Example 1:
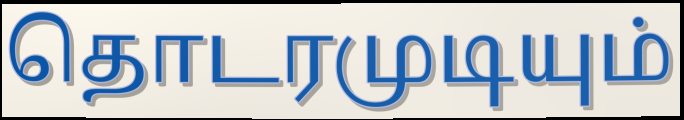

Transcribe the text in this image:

தொடரமுடியும்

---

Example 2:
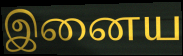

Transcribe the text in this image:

இனைய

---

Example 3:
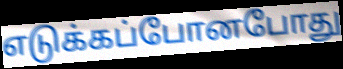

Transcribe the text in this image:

எடுக்கப்போனபோது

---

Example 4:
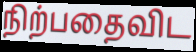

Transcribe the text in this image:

நிற்பதைவிட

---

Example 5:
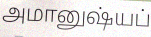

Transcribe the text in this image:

அமானுஷ்யப்